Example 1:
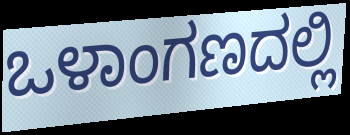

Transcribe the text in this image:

ಒಳಾಂಗಣದಲ್ಲಿ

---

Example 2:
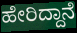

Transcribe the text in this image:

ಹೇರಿದ್ದಾನೆ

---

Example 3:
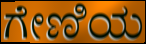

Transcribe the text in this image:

ಗೇಣಿಯ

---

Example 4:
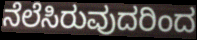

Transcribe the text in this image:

ನೆಲೆಸಿರುವುದರಿಂದ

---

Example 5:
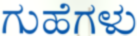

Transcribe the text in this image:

ಗುಹೆಗಳು